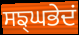
ਸਙ੍ਘਭੇਦਂ